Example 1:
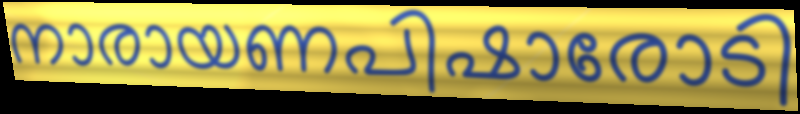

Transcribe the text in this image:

നാരായണപിഷാരോടി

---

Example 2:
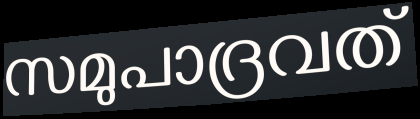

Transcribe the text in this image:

സമുപാദ്രവത്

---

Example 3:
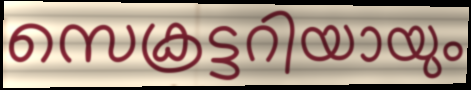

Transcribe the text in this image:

സെക്രട്ടറിയായും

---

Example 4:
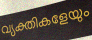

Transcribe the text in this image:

വ്യക്തികളേയും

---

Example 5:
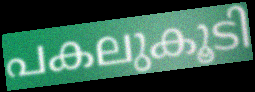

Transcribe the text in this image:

പകലുകൂടി